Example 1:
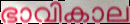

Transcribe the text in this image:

ഭാവികാല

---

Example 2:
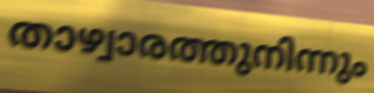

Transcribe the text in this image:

താഴ്വാരത്തുനിന്നും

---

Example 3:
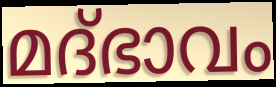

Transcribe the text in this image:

മദ്ഭാവം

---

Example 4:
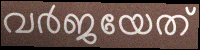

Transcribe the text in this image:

വർജയേത്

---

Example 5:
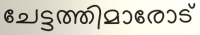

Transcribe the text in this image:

ചേട്ടത്തിമാരോട്